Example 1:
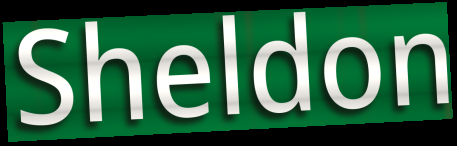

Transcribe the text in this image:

Sheldon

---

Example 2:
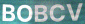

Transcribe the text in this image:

BOBCV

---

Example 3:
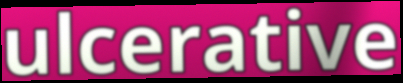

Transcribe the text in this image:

ulcerative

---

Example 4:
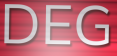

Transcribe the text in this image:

DEG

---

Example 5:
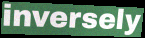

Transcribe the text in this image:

inversely